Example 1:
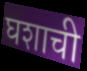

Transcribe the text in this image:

घशाची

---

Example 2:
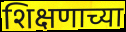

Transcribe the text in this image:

शिक्षणाच्या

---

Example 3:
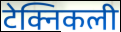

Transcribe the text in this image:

टेक्निकली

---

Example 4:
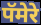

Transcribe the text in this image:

पॅमेरे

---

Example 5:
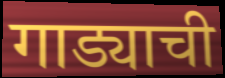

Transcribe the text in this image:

गाड्याची